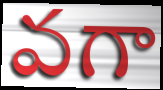
వగా